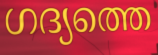
ഗദ്യത്തെ